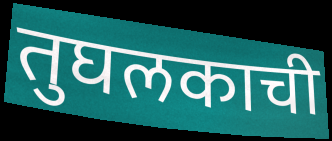
तुघलकाची